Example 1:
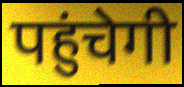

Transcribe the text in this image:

पहुंचेगी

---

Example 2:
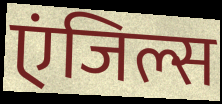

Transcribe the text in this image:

एंजिल्स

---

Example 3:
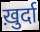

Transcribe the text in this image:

ख़ुर्दा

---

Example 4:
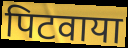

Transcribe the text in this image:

पिटवाया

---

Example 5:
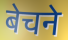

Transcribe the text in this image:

बेचने